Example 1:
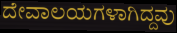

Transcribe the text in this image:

ದೇವಾಲಯಗಳಾಗಿದ್ದವು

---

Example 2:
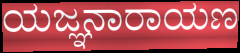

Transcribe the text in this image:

ಯಜ್ಞನಾರಾಯಣ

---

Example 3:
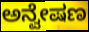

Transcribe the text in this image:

ಅನ್ವೇಷಣ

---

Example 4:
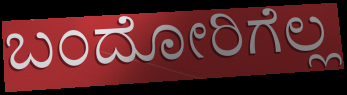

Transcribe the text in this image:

ಬಂದೋರಿಗೆಲ್ಲ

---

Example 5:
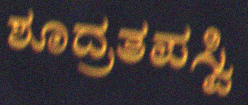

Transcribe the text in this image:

ಶೂದ್ರತಪಸ್ವಿ